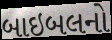
બાઇબલનો